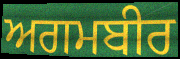
ਅਗਮਬੀਰ